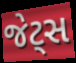
જેટ્સ